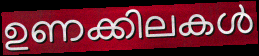
ഉണക്കിലകൾ